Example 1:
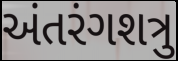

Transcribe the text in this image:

અંતરંગશત્રુ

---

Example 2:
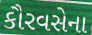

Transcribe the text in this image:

કૌરવસેના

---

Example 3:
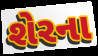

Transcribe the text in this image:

શેરના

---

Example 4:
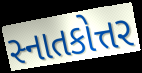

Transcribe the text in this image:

સ્નાતકોત્તર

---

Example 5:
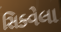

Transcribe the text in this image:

સિક્વેલા